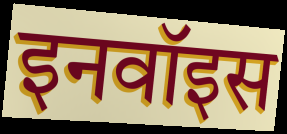
इनवॉइस